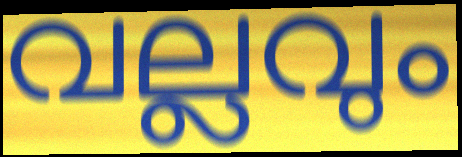
വല്ലവും